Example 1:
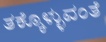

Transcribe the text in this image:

ತಕ್ಕೊಳ್ಳುವಂತೆ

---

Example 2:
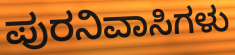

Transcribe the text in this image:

ಪುರನಿವಾಸಿಗಳು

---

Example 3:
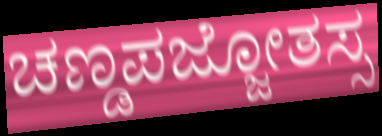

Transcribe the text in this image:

ಚಣ್ಡಪಜ್ಜೋತಸ್ಸ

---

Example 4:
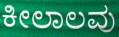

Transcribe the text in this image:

ಕೀಲಾಲವು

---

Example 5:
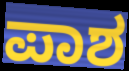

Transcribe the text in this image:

ಪಾಶ